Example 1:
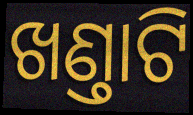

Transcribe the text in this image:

ଖଣ୍ତାଟି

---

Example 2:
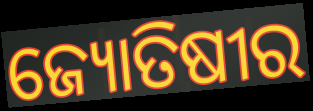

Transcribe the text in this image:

ଜ୍ୟୋତିଷୀର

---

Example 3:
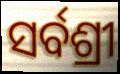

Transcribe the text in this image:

ସର୍ବଶ୍ରୀ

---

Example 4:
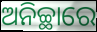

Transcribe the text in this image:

ଅନିଚ୍ଛାରେ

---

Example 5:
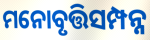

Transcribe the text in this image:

ମନୋବୃତ୍ତିସମ୍ପନ୍ନ